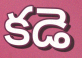
కడె